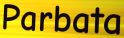
Parbata